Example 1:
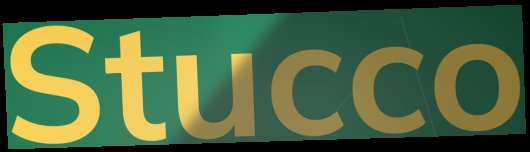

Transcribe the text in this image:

Stucco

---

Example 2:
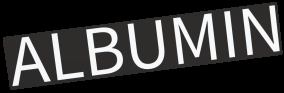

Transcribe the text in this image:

ALBUMIN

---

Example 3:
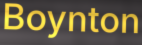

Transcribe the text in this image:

Boynton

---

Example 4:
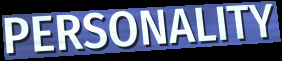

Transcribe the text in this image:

PERSONALITY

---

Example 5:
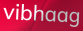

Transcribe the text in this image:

vibhaag